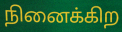
நினைக்கிற